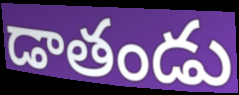
డాతండు